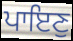
ਪਾਇਣੁ